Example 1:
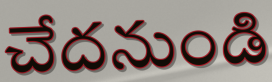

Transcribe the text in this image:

చేదనుండి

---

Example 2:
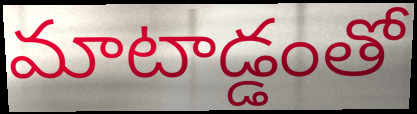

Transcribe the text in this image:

మాటాడ్డంతో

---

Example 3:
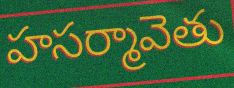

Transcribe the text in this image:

హసర్మావెతు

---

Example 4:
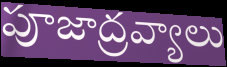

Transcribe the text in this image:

పూజాద్రవ్యాలు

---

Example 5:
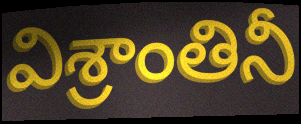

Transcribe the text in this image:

విశ్రాంతినీ